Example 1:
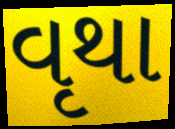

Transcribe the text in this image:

વૃથા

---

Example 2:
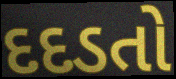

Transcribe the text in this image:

દદડતો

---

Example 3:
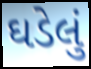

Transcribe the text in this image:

ઘડેલું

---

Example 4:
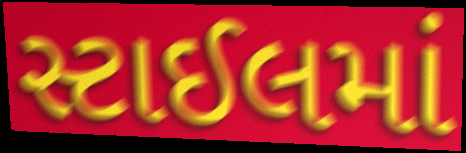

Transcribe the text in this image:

સ્ટાઈલમાં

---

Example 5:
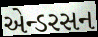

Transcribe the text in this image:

એન્ડરસન